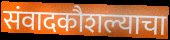
संवादकौशल्याचा